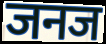
जनज